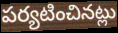
పర్యటించినట్లు